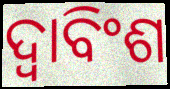
ଦ୍ୱାବିଂଶ